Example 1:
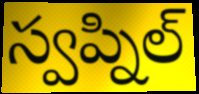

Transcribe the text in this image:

స్వప్నిల్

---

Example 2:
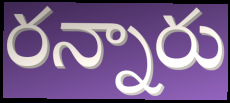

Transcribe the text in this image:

రన్నారు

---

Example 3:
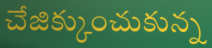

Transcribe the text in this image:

చేజిక్కుంచుకున్న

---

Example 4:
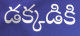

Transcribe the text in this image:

డక్కడికి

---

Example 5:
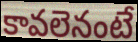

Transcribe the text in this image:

కావలెనంటే